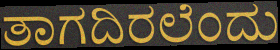
ತಾಗದಿರಲೆಂದು